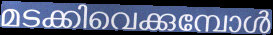
മടക്കിവെക്കുമ്പോൾ